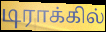
டிராக்கில்